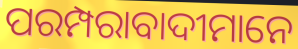
ପରମ୍ପରାବାଦୀମାନେ